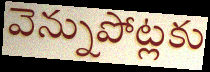
వెన్నుపోట్లకు